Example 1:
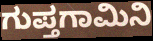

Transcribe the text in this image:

ಗುಪ್ತಗಾಮಿನಿ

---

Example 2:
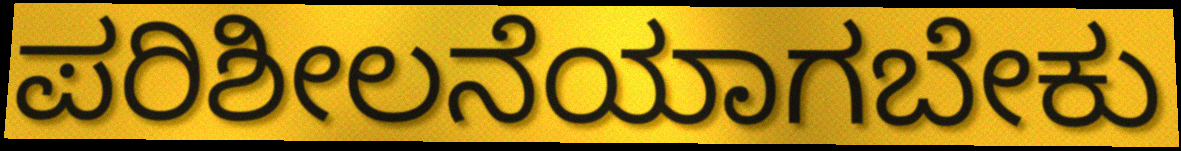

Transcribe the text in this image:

ಪರಿಶೀಲನೆಯಾಗಬೇಕು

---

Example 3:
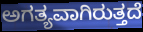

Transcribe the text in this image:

ಅಗತ್ಯವಾಗಿರುತ್ತದೆ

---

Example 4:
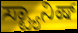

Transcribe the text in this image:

ಸ್ಟ್ಯಾನಿಷ್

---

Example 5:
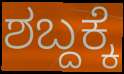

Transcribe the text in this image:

ಶಬ್ದಕ್ಕೆ